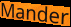
Mander